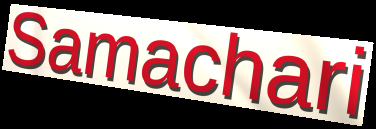
Samachari